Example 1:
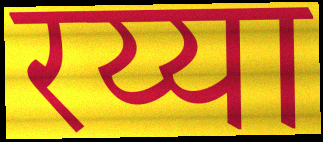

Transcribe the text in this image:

रय्या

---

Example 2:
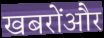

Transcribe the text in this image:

खबरोंऔर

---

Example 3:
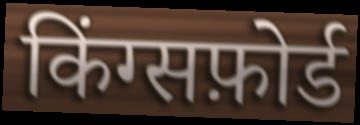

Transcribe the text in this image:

किंग्सफ़ोर्ड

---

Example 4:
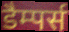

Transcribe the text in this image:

डैम्पर्स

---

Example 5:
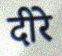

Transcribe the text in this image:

दीरे